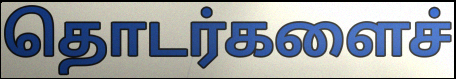
தொடர்களைச்